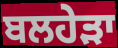
ਬਲਹੇੜਾ